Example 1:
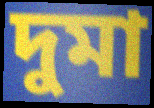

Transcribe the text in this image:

দুমা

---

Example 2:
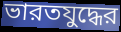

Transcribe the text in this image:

ভারতযুদ্ধের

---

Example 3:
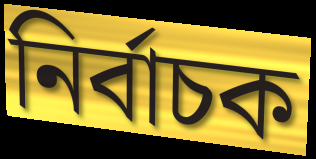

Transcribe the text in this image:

নির্বাচক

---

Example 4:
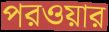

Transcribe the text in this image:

পরওয়ার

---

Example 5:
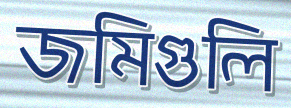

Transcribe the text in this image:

জমিগুলি